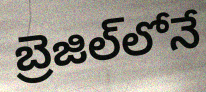
బ్రెజిల్‌లోనే